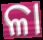
ଳା